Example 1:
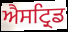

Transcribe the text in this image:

ਐਸਟ੍ਰਿਡ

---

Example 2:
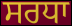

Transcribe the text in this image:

ਸਰਧਾ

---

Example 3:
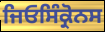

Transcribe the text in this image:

ਜਿਓਸਿੰਕ੍ਰੋਨਸ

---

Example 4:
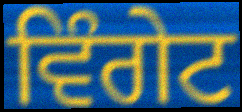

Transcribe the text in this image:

ਵਿੰਗੇਟ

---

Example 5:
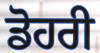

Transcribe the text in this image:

ਡੋਹਰੀ